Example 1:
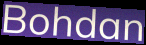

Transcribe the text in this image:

Bohdan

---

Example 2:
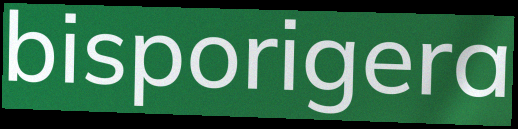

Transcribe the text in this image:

bisporigera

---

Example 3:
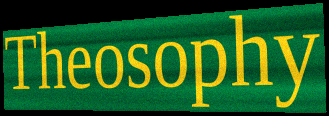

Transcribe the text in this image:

Theosophy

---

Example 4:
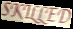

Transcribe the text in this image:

SKILLED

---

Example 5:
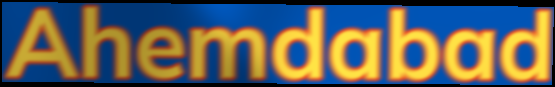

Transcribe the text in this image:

Ahemdabad